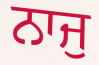
ਨਾਜੁ